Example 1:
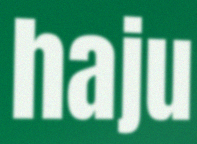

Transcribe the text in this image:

haju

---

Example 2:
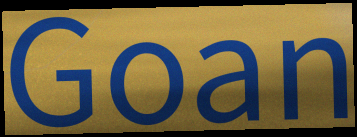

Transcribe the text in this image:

Goan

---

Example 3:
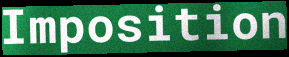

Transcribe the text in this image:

Imposition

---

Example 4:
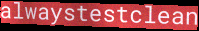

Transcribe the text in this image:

alwaystestclean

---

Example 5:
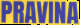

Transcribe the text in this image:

PRAVINA